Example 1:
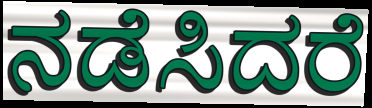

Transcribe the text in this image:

ನಡೆಸಿದರೆ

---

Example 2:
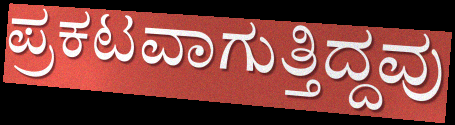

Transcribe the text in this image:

ಪ್ರಕಟವಾಗುತ್ತಿದ್ದವು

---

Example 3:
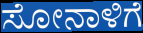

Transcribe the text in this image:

ಸೋನಾಳಿಗೆ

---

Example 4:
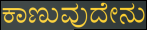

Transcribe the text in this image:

ಕಾಣುವುದೇನು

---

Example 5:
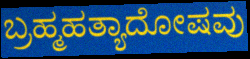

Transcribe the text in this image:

ಬ್ರಹ್ಮಹತ್ಯಾದೋಷವು